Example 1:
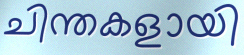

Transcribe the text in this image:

ചിന്തകളായി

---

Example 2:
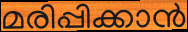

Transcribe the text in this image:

മരിപ്പിക്കാൻ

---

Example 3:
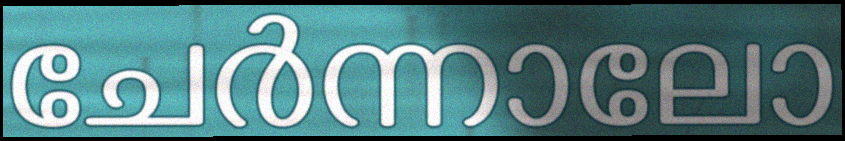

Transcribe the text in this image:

ചേർന്നാലോ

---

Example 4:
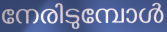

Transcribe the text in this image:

നേരിടുമ്പോൾ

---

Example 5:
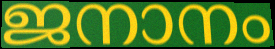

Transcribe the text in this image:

ജനാനം